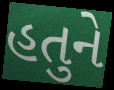
હતુને